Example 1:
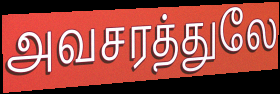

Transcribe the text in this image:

அவசரத்துலே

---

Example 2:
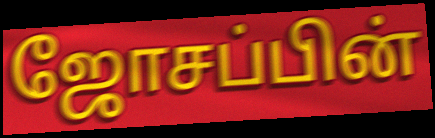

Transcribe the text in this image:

ஜோசப்பின்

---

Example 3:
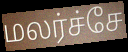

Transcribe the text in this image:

மலர்ச்சே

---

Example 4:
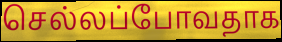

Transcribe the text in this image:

செல்லப்போவதாக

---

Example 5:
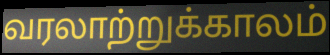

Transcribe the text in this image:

வரலாற்றுக்காலம்